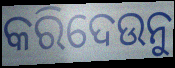
କରିଦେଉନୁ